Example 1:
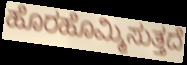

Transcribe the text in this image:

ಹೊರಹೊಮ್ಮಿಸುತ್ತದೆ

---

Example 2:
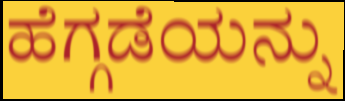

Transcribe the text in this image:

ಹೆಗ್ಗಡೆಯನ್ನು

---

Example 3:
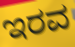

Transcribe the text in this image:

ಇರವ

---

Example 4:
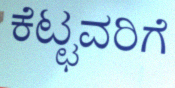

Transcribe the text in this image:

ಕೆಟ್ಟವರಿಗೆ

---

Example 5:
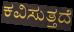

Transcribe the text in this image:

ಕವಿಸುತ್ತದೆ